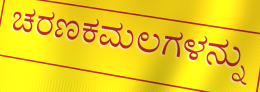
ಚರಣಕಮಲಗಳನ್ನು